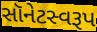
સૉનેટસ્વરૂપ